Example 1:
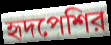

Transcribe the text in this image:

হৃদপেশির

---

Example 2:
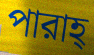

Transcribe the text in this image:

পারাহ্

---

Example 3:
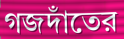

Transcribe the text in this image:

গজদাঁতের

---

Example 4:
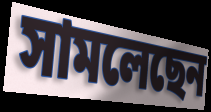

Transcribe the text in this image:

সামলেছেন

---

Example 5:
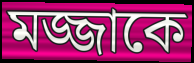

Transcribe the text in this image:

মজ্জাকে